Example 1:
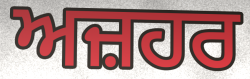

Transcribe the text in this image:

ਅਜ਼ਹਰ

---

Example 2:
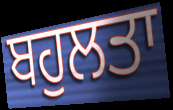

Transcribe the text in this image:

ਬਹੁਲਤਾ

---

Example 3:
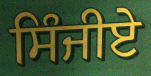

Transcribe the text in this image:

ਸਿੰਜੀਏ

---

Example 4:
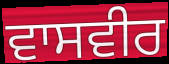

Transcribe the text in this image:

ਵਾਸਵੀਰ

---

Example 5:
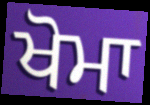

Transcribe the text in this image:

ਖੋਮਾ